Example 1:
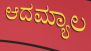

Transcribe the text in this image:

ಆದಮ್ಯಾಲ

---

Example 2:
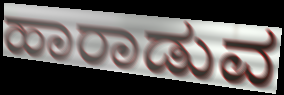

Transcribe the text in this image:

ಹಾರಾಡುವ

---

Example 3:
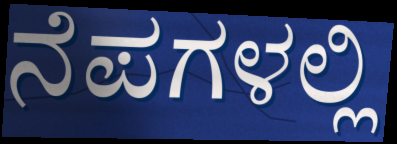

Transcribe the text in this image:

ನೆಪಗಳಲ್ಲಿ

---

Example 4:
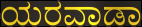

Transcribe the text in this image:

ಯರವಾಡಾ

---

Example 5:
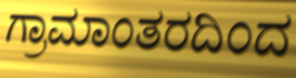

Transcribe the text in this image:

ಗ್ರಾಮಾಂತರದಿಂದ